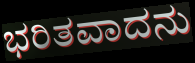
ಭರಿತವಾದನು